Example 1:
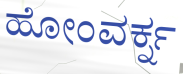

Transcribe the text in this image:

ಹೋಂವರ್ಕ್ನ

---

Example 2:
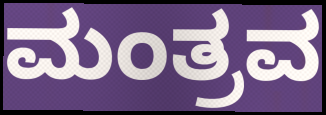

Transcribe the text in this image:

ಮಂತ್ರವ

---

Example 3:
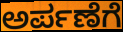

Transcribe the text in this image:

ಅರ್ಪಣೆಗೆ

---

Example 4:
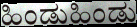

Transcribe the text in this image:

ಹಿಂಡುಹಿಂಡು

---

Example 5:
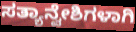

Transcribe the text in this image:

ಸತ್ಯಾನ್ವೇಶಿಗಳಾಗಿ